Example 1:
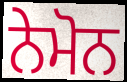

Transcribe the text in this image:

ਨੇਮੋਨ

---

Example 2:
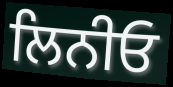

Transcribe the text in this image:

ਲਿਨੀਓ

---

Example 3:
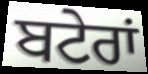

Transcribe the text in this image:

ਬਟੇਰਾਂ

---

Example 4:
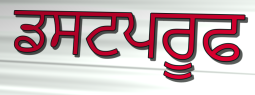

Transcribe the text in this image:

ਡਸਟਪਰੂਫ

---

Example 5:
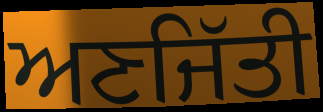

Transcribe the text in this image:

ਅਣਜਿੱਤੀ